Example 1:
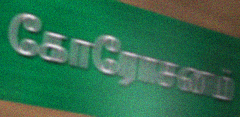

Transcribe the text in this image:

கோரோசனம்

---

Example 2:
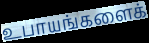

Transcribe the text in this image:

உபாயங்களைக்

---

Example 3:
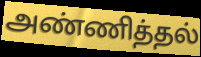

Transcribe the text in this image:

அண்ணித்தல்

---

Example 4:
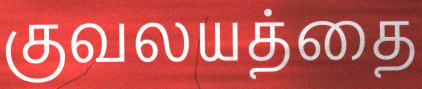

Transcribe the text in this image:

குவலயத்தை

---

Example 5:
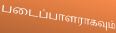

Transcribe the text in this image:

படைப்பாளராகவும்